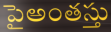
పైఅంతస్తు